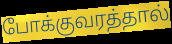
போக்குவரத்தால்